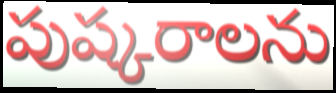
పుష్కరాలను